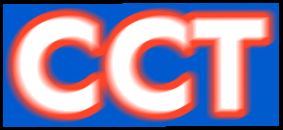
CCT